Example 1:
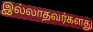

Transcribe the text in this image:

இல்லாதவர்களது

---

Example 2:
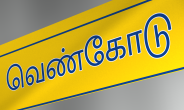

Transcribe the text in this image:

வெண்கோடு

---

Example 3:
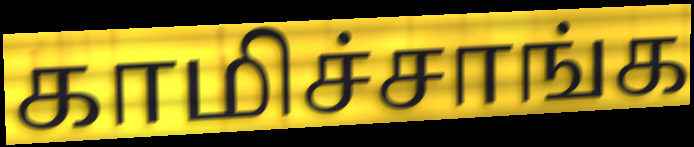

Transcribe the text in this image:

காமிச்சாங்க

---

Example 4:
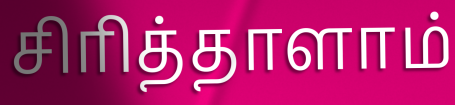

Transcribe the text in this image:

சிரித்தாளாம்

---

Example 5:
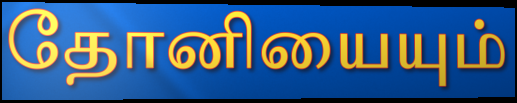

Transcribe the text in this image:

தோனியையும்